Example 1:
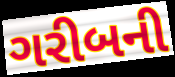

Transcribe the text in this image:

ગરીબની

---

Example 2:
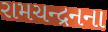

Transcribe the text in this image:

રામચન્દ્રનના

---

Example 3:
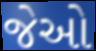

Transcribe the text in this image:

જેઓ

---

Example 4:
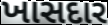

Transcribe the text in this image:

ખાસદાર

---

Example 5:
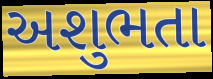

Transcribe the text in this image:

અશુભતા